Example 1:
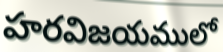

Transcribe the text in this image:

హరవిజయములో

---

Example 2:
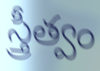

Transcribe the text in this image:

స్త్రీత్వం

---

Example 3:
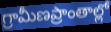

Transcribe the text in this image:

గ్రామీణప్రాంతాల్లో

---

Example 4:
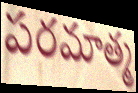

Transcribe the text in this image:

పరమాత్మ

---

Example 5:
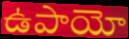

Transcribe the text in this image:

ఉపాయో